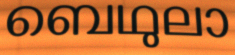
ബെഥുലാ